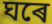
ঘৰে